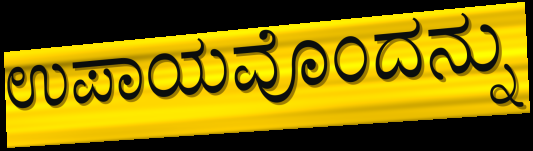
ಉಪಾಯವೊಂದನ್ನು